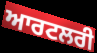
ਆਰਟਲਰੀ